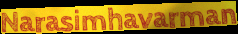
Narasimhavarman